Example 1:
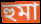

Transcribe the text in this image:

হুমা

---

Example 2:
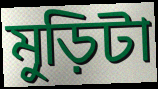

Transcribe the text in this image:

মুড়িটা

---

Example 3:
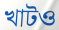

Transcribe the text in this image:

খাটও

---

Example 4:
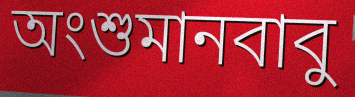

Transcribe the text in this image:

অংশুমানবাবু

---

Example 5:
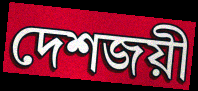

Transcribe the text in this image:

দেশজয়ী